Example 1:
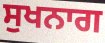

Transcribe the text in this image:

ਸੁਖਨਾਗ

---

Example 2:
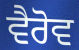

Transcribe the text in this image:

ਵੈਰੋਵ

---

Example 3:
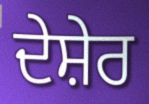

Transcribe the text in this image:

ਦੇਸ਼ੇਰ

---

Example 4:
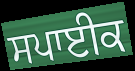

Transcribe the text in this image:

ਸਪਾਈਕ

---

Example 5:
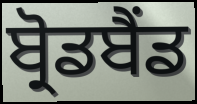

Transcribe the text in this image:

ਬ੍ਰੋਡਬੈਂਡ